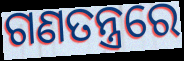
ଗଣତନ୍ତ୍ରରେ